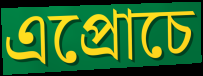
এপ্রোচে